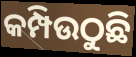
କମ୍ପିଉଠୁଛି